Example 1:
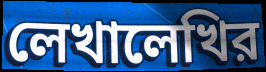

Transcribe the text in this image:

লেখালেখির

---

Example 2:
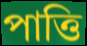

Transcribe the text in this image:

পাত্তি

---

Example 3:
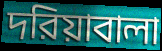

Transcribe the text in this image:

দরিয়াবালা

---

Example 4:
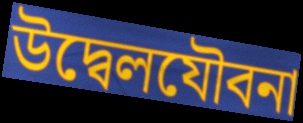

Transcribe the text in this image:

উদ্বেলযৌবনা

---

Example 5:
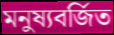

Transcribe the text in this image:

মনুষ্যবর্জিত